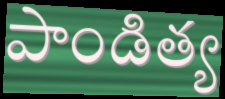
పాండిత్య